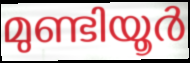
മുണ്ടിയൂർ